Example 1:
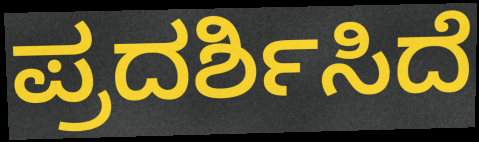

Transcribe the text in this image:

ಪ್ರದರ್ಶಿಸಿದೆ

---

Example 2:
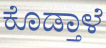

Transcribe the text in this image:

ಕೊಡ್ತಾಳೆ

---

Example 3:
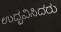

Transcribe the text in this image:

ಉದ್ಭವಿಸಿದರು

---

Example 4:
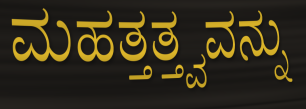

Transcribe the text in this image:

ಮಹತ್ತತ್ತ್ವವನ್ನು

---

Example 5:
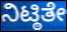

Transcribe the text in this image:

ನಿಟ್ಠಿತೇ